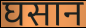
घसान